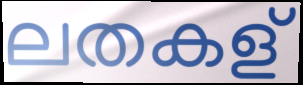
ലതകള്